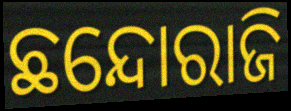
ଛନ୍ଦୋରାଜି